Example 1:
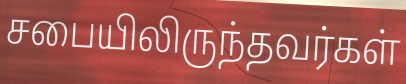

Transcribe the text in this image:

சபையிலிருந்தவர்கள்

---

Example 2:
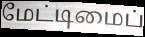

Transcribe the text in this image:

மேட்டிமைப்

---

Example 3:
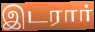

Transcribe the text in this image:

இடரார்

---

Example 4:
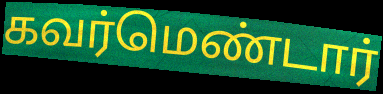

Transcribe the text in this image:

கவர்மெண்டார்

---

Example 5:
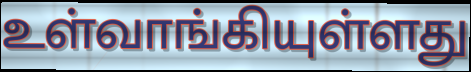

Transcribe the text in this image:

உள்வாங்கியுள்ளது